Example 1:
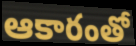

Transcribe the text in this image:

ఆకారంతో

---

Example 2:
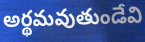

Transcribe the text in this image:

అర్థమవుతుండేవి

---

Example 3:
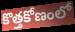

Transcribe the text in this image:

కొత్తకోణంలో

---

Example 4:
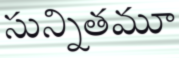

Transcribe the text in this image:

సున్నితమూ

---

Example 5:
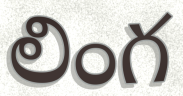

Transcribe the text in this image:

లింగ